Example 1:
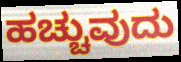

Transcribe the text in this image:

ಹಚ್ಚುವುದು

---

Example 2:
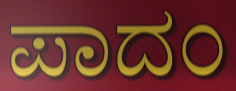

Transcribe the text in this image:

ಪಾದಂ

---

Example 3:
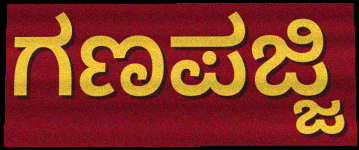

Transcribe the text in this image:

ಗಣಪಜ್ಜಿ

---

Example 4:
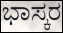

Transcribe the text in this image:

ಭಾಸ್ಕರ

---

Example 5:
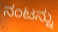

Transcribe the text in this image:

ನಂಟನ್ನು